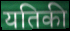
यतिकी